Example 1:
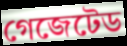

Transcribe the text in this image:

গেজেটেড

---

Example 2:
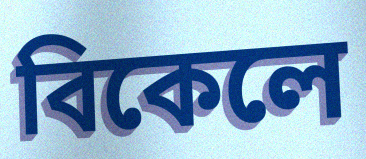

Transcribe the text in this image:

বিকেলে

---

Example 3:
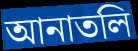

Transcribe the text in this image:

আনাতলি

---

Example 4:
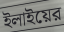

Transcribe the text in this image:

ইলাইয়ের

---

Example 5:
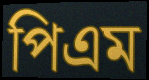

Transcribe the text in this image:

পিএম